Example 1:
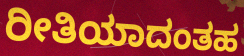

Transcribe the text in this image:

ರೀತಿಯಾದಂತಹ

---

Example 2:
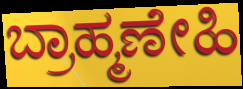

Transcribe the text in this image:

ಬ್ರಾಹ್ಮಣೇಹಿ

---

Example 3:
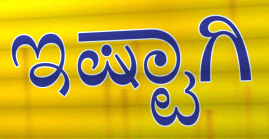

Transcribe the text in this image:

ಇಷ್ಟಾಗಿ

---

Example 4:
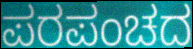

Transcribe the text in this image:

ಪರಪಂಚದ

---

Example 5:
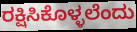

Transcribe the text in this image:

ರಕ್ಷಿಸಿಕೊಳ್ಳಲೆಂದು